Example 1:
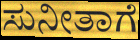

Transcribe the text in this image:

ಸುನೀತಾಗೆ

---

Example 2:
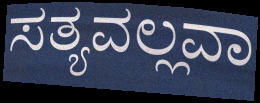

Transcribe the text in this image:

ಸತ್ಯವಲ್ಲವಾ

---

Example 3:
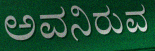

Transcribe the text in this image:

ಅವನಿರುವ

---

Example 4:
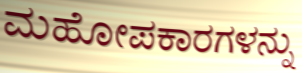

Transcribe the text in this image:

ಮಹೋಪಕಾರಗಳನ್ನು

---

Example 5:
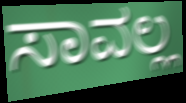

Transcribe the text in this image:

ಸಾವಲ್ಲ